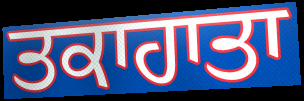
ਤਕਾਹਾਤਾ